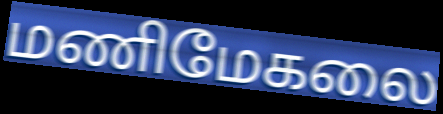
மணிமேகலை